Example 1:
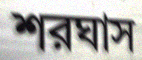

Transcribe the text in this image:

শরঘাস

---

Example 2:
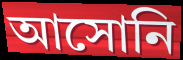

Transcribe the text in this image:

আসোনি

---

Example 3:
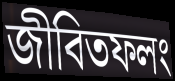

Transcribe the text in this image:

জীবিতফলং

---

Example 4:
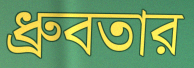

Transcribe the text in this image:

ধ্রুবতার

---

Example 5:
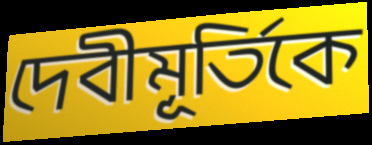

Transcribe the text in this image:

দেবীমূর্তিকে